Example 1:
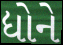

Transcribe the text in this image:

દ્યોને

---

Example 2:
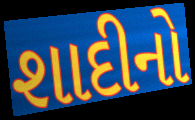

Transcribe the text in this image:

શાદીનો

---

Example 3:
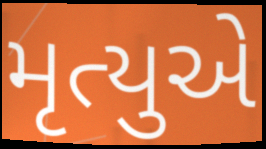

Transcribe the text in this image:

મૃત્યુએ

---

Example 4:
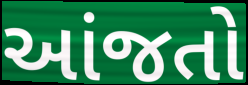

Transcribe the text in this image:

આંજતો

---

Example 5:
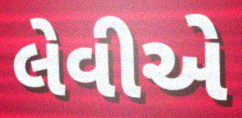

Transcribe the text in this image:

લેવીએ